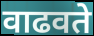
वाढवते